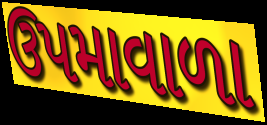
ઉપમાવાળા